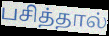
பசித்தால்